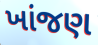
ખાંજણ